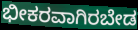
ಭೀಕರವಾಗಿರಬೇಡ